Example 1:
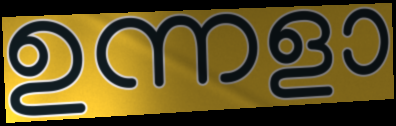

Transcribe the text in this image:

ഉന്നളാ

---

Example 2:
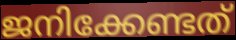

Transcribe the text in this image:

ജനിക്കേണ്ടത്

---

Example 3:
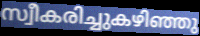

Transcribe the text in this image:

സ്വീകരിച്ചുകഴിഞ്ഞു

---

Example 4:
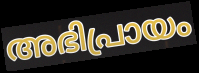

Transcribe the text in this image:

അഭിപ്രായം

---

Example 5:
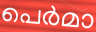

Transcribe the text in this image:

പെർമാ